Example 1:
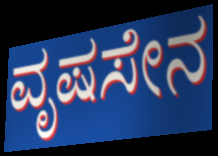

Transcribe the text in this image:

ವೃಷಸೇನ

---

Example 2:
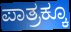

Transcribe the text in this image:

ಪಾತ್ರಕ್ಕೂ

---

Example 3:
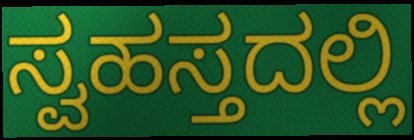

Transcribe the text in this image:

ಸ್ವಹಸ್ತದಲ್ಲಿ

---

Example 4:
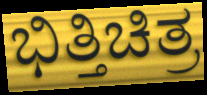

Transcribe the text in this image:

ಭಿತ್ತಿಚಿತ್ರ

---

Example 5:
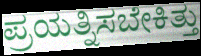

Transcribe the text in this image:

ಪ್ರಯತ್ನಿಸಬೇಕಿತ್ತು